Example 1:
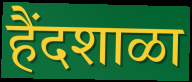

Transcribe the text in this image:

हैंदशाळा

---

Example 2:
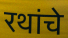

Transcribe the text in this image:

रथांचे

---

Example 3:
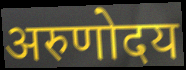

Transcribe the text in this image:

अरुणोदय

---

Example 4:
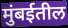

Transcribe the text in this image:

मुंबईतील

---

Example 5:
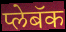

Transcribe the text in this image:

प्लेबॅक